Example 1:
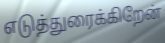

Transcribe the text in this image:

எடுத்துரைக்கிறேன்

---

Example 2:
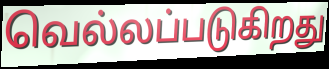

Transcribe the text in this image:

வெல்லப்படுகிறது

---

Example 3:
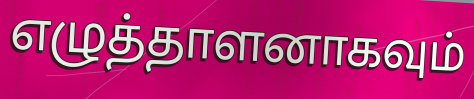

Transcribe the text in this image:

எழுத்தாளனாகவும்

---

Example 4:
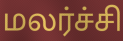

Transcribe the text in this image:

மலர்ச்சி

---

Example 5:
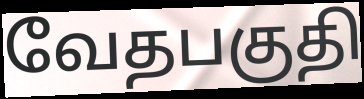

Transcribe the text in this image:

வேதபகுதி